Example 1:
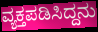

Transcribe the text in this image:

ವ್ಯಕ್ತಪಡಿಸಿದ್ದನು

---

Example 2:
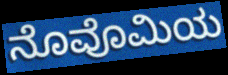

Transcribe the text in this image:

ನೊವೊಮಿಯ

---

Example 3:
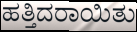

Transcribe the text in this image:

ಹತ್ತಿದರಾಯಿತು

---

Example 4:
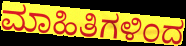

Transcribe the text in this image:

ಮಾಹಿತಿಗಳಿಂದ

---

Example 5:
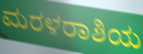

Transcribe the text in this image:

ಮರಳರಾಶಿಯ